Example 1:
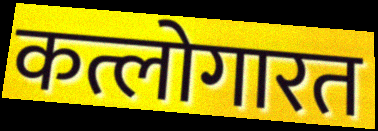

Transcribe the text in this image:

कत्लोगारत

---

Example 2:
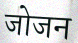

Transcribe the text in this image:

जोजन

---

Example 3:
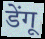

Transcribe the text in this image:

डेंगू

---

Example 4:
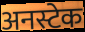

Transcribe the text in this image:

अनस्टेक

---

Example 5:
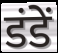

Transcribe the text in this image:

डंडें